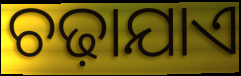
ଚଢ଼ାଯାଏ